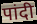
पांदी